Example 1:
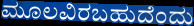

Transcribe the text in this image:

ಮೂಲವಿರಬಹುದೆಂದು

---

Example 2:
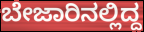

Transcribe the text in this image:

ಬೇಜಾರಿನಲ್ಲಿದ್ದ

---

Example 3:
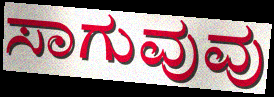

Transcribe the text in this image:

ಸಾಗುವುವು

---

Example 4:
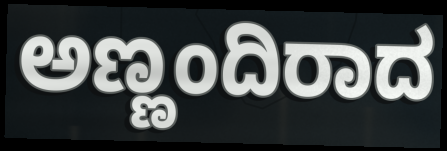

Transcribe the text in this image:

ಅಣ್ಣಂದಿರಾದ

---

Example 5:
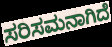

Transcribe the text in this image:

ಸರಿಸಮನಾಗಿದೆ